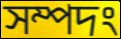
সম্পদং